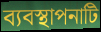
ব্যবস্থাপনাটি